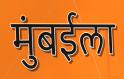
मुंबईला